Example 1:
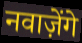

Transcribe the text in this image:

नवाज़ेंगे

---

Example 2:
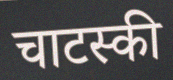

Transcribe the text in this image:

चाटस्की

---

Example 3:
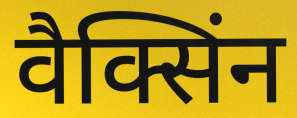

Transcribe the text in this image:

वैक्सिंन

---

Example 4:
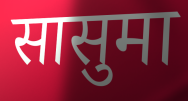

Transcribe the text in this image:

सासुमा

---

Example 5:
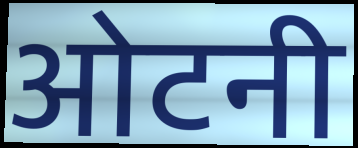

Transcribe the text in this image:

ओटनी